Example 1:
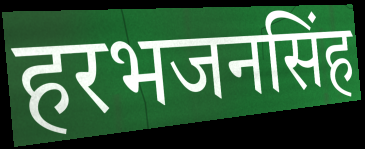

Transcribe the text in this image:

हरभजनसिंह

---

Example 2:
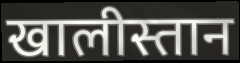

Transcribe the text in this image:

खालीस्तान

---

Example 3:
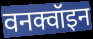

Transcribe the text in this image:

वनक्वॉइन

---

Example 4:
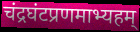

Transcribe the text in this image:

चंद्रघंटप्रणमाभ्यहम्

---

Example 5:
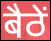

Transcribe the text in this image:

बैठें